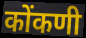
कोंकणी